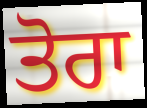
ਤੋਰਾ